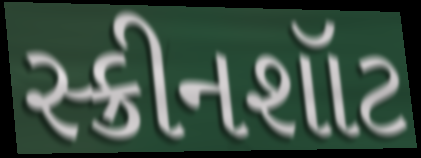
સ્ક્રીનશૉટ